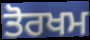
ਤੋਰਖਮ